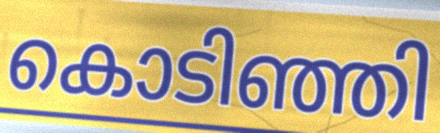
കൊടിഞ്ഞി